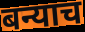
बन्याच